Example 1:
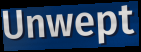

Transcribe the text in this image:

Unwept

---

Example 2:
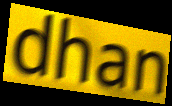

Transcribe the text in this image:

dhan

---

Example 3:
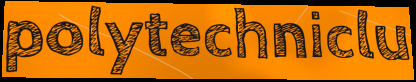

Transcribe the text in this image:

polytechniclu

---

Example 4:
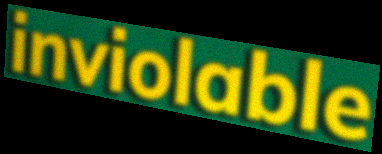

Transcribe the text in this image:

inviolable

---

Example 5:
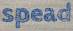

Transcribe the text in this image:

spead